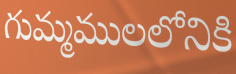
గుమ్మములలోనికి